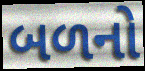
બળનો